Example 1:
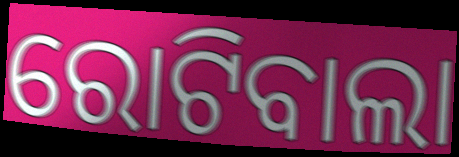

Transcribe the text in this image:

ରୋଟିବାଲା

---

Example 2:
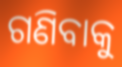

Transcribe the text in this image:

ଗଣିବାକୁ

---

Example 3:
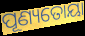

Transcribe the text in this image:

ପୂଣ୍ୟତୋୟା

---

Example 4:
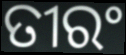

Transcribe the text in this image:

ତୀରଂ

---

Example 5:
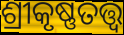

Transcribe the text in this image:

ଶ୍ରୀକୃଷ୍ଣତତ୍ତ୍ଵ